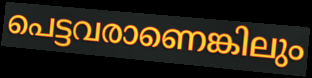
പെട്ടവരാണെങ്കിലും